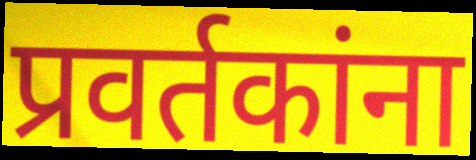
प्रवर्तकांना